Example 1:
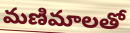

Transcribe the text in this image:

మణిమాలతో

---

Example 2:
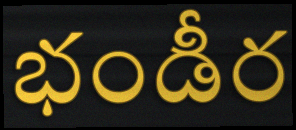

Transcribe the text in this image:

భండీర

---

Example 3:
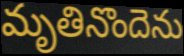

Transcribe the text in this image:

మృతినొందెను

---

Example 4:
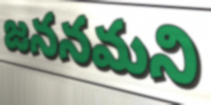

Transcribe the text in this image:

జననమని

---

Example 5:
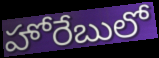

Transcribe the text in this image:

హోరేబులో